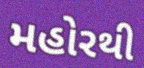
મહોરથી